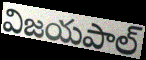
విజయపాల్